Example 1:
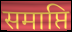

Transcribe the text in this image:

समाप्ति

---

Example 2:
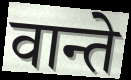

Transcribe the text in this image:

वान्ते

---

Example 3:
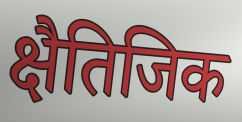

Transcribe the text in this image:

क्षैतिजिक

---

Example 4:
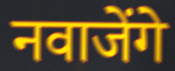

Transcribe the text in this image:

नवाजेंगे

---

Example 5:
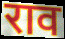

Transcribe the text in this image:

राव